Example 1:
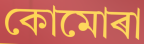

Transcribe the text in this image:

কোমোৰা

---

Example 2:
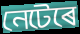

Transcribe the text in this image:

নেটেৰে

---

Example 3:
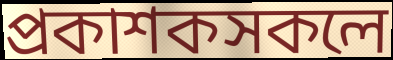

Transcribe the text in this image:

প্ৰকাশকসকলে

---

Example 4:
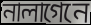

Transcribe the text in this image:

নালাগেনে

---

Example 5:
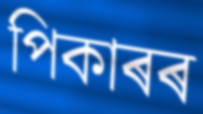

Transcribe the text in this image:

পিকাৰৰ